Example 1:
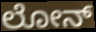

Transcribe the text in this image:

ಲೋನ್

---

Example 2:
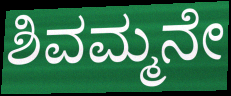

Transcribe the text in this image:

ಶಿವಮ್ಮನೇ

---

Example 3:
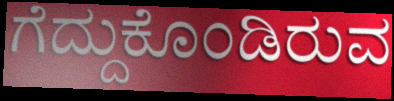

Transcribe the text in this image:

ಗೆದ್ದುಕೊಂಡಿರುವ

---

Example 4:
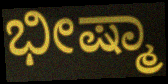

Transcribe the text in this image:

ಭೀಷ್ಮಾ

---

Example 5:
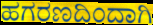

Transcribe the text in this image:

ಹಗರಣದಿಂದಾಗಿ